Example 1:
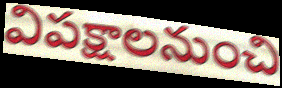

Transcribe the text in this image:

విపక్షాలనుంచి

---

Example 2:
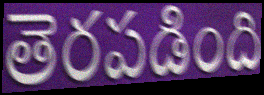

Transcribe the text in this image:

తెరపడింది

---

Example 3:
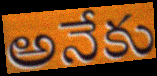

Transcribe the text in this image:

అనేకు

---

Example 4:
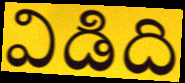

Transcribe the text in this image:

విడిది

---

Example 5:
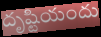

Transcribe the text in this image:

దృష్టియందు